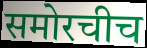
समोरचीच